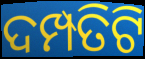
ଦମ୍ପତିଟି